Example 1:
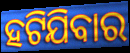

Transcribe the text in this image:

ହଟିଯିବାର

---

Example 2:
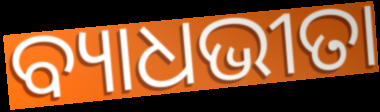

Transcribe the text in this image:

ବ୍ୟାଧଭୀତା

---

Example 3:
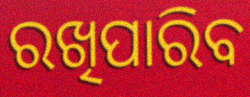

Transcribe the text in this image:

ରଖିପାରିବ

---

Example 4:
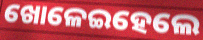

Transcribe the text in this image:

ଖୋଳେଇହେଲେ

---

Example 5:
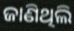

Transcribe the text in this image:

ଜାଣିଥିଲି